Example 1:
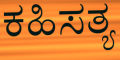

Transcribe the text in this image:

ಕಹಿಸತ್ಯ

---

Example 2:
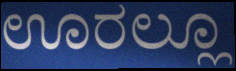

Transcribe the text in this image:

ಊರಲ್ಲೂ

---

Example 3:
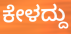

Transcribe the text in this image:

ಕೇಳದ್ದು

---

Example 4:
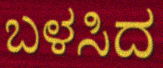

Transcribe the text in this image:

ಬಳಸಿದ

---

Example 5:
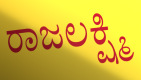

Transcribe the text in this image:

ರಾಜಲಕ್ಷ್ಮಿ